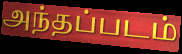
அந்தப்படம்